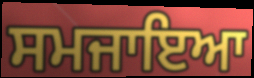
ਸਮਜਾਇਆ